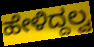
ಹೇಳಿದ್ದಲ್ವ